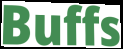
Buffs